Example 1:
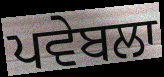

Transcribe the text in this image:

ਪਵੇਬਲਾ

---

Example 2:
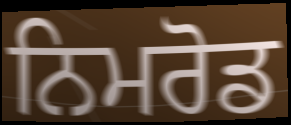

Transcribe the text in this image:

ਨਿਮਰੋਡ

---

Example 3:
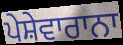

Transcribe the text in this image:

ਪੇਸ਼ੇਵਾਰਾਨਾ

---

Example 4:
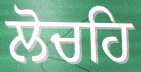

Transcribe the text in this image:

ਲੋਚਹਿ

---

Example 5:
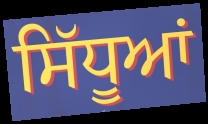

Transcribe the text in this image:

ਸਿੱਧੂਆਂ